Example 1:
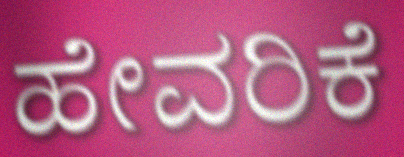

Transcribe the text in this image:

ಹೇವರಿಕೆ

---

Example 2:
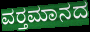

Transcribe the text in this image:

ವರ‍್ತಮಾನದ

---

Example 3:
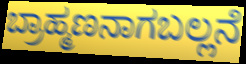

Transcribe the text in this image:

ಬ್ರಾಹ್ಮಣನಾಗಬಲ್ಲನೆ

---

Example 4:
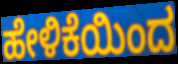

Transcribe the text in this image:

ಹೇಳಿಕೆಯಿಂದ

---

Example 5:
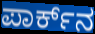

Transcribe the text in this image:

ಪಾರ್ಕ್‌ನ